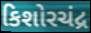
કિશોરચંદ્ર